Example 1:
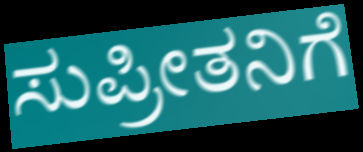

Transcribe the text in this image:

ಸುಪ್ರೀತನಿಗೆ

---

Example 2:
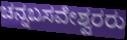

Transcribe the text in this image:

ಚನ್ನಬಸವೇಶ್ವರರು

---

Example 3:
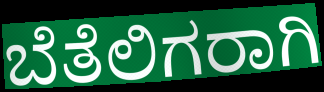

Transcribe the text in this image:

ಬೆತೆಲಿಗರಾಗಿ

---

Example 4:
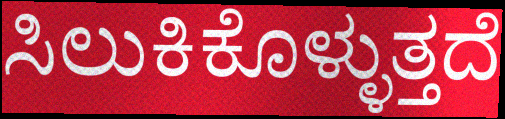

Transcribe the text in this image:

ಸಿಲುಕಿಕೊಳ್ಳುತ್ತದೆ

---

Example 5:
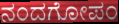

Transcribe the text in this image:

ನಂದಗೋಪಂ